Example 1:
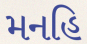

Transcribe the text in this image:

મનહિ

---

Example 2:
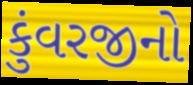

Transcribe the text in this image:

કુંવરજીનો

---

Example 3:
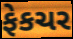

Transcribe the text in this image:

ફેકચર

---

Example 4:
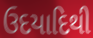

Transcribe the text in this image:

ઉદયાદિથી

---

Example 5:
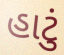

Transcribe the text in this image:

હાટું